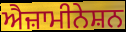
ਐਜ਼ਾਮੀਨੇਸ਼ਨ